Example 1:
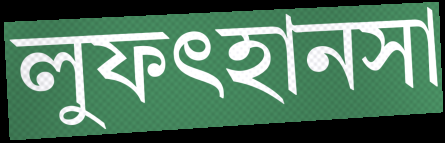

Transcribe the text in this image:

লুফৎহানসা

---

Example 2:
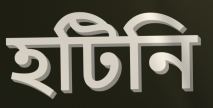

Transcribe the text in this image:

হটিনি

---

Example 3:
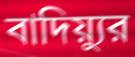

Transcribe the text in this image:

বাদিয়্যুর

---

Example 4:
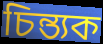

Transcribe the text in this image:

চিন্ত্যক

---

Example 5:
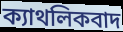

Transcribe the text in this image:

ক্যাথলিকবাদ